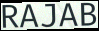
RAJAB